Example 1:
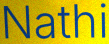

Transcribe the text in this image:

Nathi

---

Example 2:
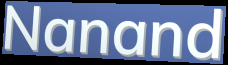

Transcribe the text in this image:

Nanand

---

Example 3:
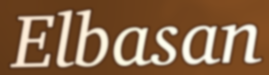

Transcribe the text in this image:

Elbasan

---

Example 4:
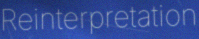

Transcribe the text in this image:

Reinterpretation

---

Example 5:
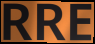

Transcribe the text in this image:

RRE